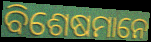
ବିଶେଷମାନେ